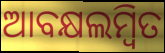
ଆବକ୍ଷଲମ୍ବିତ